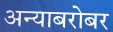
अन्याबरोबर